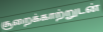
சூறைக்காற்றுடன்